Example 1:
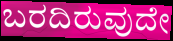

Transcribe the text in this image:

ಬರದಿರುವುದೇ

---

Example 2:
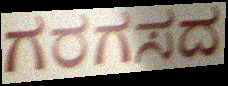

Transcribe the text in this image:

ಗರಗಸದ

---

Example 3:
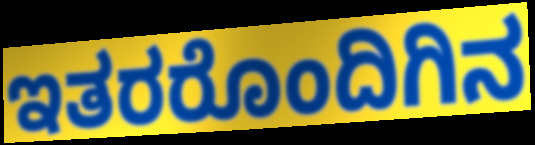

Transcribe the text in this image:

ಇತರರೊಂದಿಗಿನ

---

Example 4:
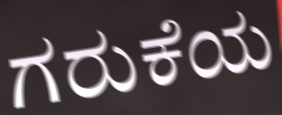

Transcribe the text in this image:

ಗರುಕೆಯ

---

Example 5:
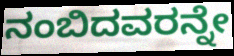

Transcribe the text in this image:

ನಂಬಿದವರನ್ನೇ